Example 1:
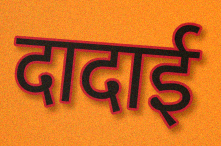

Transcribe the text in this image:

दादाई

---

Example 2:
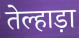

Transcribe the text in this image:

तेल्हाड़ा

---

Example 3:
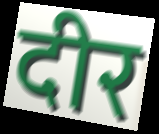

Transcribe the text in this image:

दीर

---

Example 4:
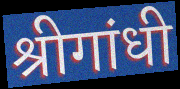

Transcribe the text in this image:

श्रीगांधी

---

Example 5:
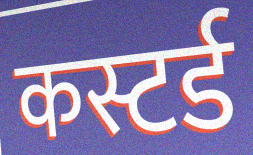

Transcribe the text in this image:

कस्टर्ड